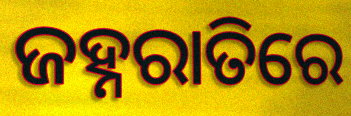
ଜହ୍ନରାତିରେ